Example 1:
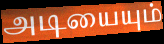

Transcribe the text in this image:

அடியையும்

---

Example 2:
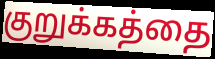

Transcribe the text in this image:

குறுக்கத்தை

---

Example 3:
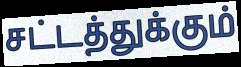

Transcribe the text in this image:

சட்டத்துக்கும்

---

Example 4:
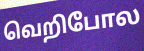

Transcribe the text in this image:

வெறிபோல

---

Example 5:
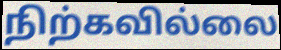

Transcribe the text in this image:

நிற்கவில்லை